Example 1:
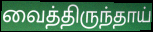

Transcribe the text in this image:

வைத்திருந்தாய்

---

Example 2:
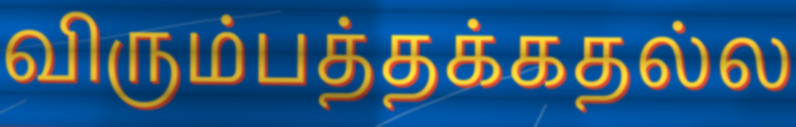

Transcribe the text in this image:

விரும்பத்தக்கதல்ல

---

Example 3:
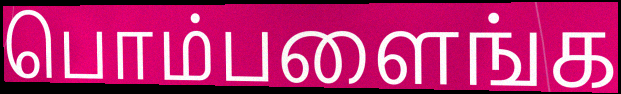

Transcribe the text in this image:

பொம்பளைங்க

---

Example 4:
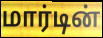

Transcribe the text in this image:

மார்டின்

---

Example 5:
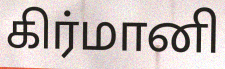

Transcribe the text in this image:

கிர்மானி